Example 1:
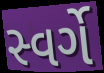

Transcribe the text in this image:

સ્વર્ગે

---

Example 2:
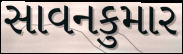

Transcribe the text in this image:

સાવનકુમાર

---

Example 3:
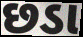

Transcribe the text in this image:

છડા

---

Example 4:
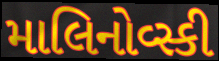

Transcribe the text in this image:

માલિનોવ્સ્કી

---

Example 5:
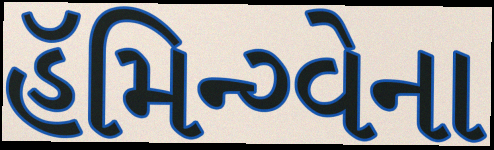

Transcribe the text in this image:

હૅમિન્ગ્વેના